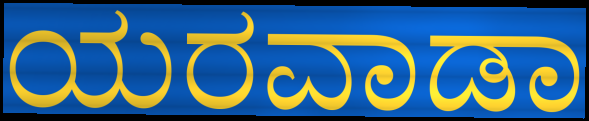
ಯರವಾಡಾ